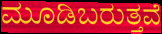
ಮೂಡಿಬರುತ್ತವೆ